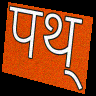
पथ्